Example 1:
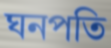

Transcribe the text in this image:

ঘনপতি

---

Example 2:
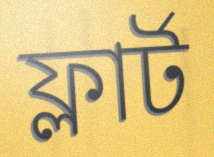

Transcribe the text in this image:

ফ্লার্ট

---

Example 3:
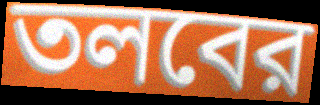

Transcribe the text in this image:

তলবের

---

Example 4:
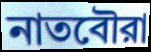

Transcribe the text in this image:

নাতবৌরা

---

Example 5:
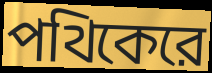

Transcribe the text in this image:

পথিকেরে